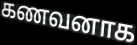
கணவனாக